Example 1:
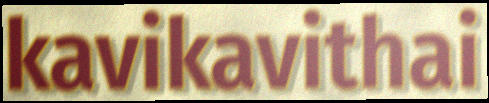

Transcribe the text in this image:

kavikavithai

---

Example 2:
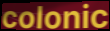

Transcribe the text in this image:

colonic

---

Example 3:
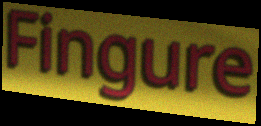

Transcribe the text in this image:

Fingure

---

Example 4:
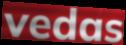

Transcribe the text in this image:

vedas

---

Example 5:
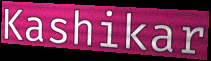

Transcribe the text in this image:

Kashikar